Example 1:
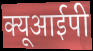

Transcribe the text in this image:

क्यूआईपी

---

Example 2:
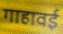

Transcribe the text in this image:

गाहावई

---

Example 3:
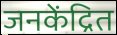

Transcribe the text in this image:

जनकेंद्रित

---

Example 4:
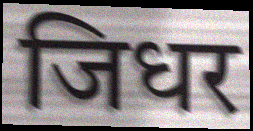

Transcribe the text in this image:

जिधर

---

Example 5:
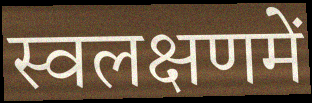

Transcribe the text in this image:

स्वलक्षणमें